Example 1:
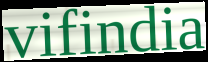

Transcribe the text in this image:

vifindia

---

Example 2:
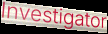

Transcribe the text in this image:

Investigator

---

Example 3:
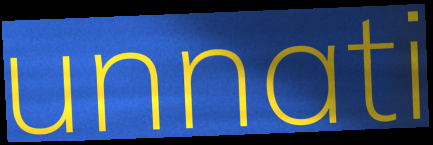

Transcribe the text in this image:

unnati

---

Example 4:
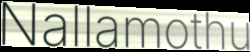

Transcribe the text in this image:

Nallamothu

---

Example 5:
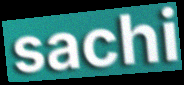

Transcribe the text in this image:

sachi